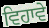
ਵਿਹਾਵੇ